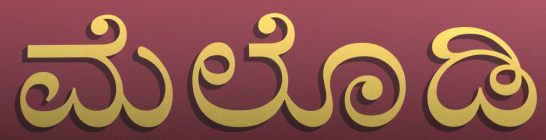
ಮೆಲೊಡಿ